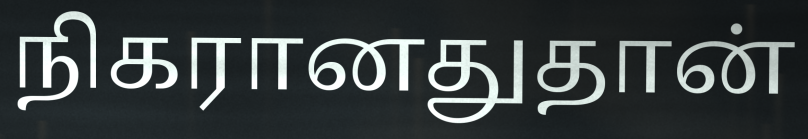
நிகரானதுதான்